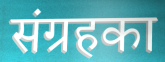
संग्रहका